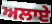
ਅਲਾਏ